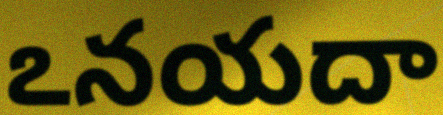
ఽనయదా